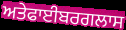
ਅਤੇਫਾਈਬਰਗਲਾਸ